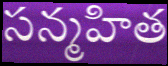
సన్మహిత